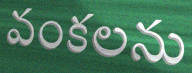
వంకలను